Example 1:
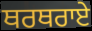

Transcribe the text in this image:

ਥਰਥਰਾਏ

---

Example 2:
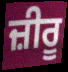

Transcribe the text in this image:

ਜ਼ੀਰੂ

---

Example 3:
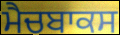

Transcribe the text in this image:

ਮੈਚਬਾਕਸ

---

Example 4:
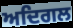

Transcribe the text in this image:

ਅਦਿਗਲ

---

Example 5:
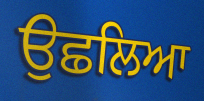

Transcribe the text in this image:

ਉਛਲਿਆ